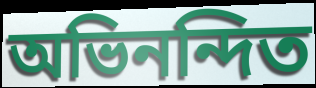
অভিনন্দিত